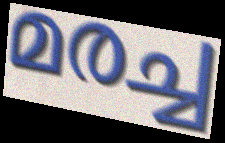
മരച്ച